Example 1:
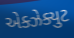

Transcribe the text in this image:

એક્ઝેક્યુટ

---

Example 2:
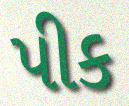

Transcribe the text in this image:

પીક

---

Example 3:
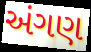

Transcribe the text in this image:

અંગણ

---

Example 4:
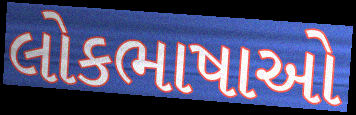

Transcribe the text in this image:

લોકભાષાઓ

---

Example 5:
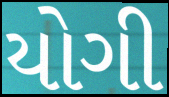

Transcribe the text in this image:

યોગી